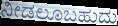
ನೀಡಲೂಬಹುದು